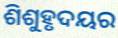
ଶିଶୁହୃଦୟର